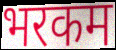
भरकम